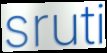
sruti